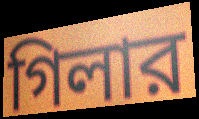
গিলার